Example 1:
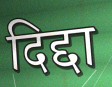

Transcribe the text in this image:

दिद्दा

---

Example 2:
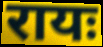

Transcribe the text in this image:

रायः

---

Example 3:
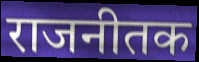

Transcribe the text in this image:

राजनीतक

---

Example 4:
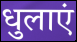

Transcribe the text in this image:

धुलाएं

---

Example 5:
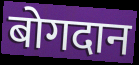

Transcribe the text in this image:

बोगदान